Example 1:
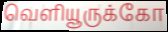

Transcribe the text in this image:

வெளியூருக்கோ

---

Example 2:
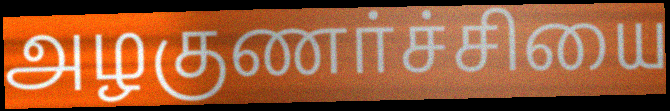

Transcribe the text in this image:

அழகுணர்ச்சியை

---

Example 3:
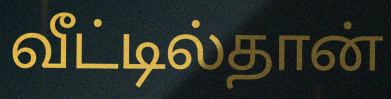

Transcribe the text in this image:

வீட்டில்தான்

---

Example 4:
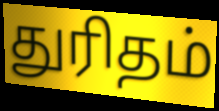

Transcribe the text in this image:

துரிதம்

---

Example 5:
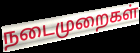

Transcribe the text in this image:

நடைமுறைகள்